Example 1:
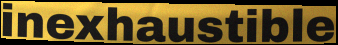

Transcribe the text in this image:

inexhaustible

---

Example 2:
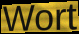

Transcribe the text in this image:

Wort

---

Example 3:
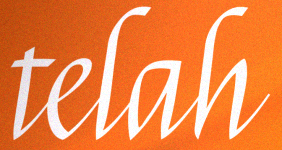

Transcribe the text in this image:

telah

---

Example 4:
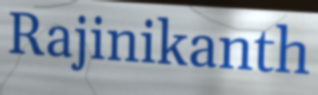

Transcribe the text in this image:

Rajinikanth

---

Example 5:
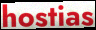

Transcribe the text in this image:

hostias